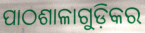
ପାଠଶାଳାଗୁଡ଼ିକର